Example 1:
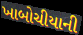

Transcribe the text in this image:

ખાબોચીયાની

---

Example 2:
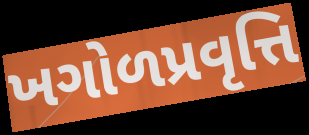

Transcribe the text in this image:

ખગોળપ્રવૃત્તિ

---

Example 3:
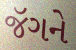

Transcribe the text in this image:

જૅગને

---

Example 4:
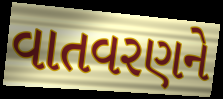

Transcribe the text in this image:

વાતવરણને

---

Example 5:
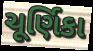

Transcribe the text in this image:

ચૂર્ણિકા